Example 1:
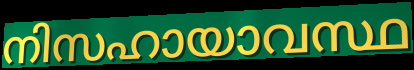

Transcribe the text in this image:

നിസഹായാവസ്ഥ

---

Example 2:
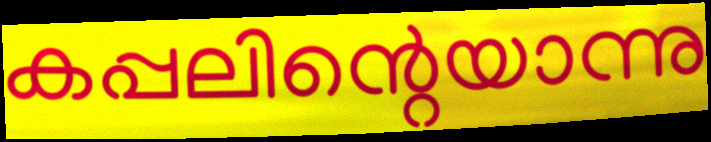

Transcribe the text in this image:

കപ്പലിന്റെയാന്നു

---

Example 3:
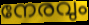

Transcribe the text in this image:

നേരവും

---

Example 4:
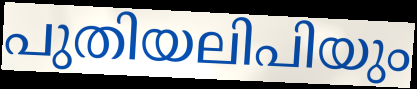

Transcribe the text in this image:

പുതിയലിപിയും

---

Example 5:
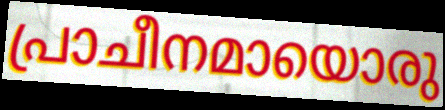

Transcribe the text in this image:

പ്രാചീനമായൊരു